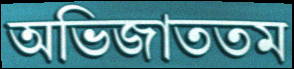
অভিজাততম